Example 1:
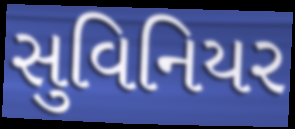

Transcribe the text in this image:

સુવિનિયર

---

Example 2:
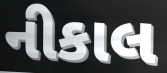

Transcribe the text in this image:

નીકાલ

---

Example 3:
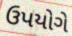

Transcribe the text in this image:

ઉપયોગે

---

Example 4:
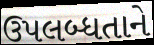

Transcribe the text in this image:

ઉપલબ્ધતાને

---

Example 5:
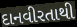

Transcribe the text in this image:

દાનવીરતાથી